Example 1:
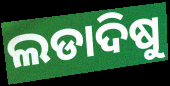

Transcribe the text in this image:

ଲଡାଦିଷୁ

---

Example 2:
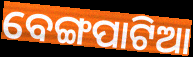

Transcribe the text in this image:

ବେଙ୍ଗପାଟିଆ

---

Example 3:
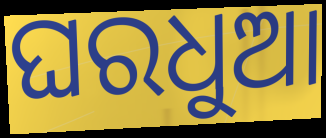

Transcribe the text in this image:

ଘରଧୁଆ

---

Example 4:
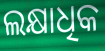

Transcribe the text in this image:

ଲକ୍ଷାଧିକ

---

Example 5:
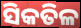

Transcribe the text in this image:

ସିକତିଳ